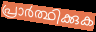
പ്രാർത്ഥിക്കുക